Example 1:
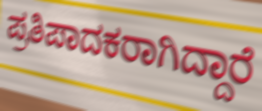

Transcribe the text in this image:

ಪ್ರತಿಪಾದಕರಾಗಿದ್ದಾರೆ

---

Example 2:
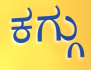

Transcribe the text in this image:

ಕಗ್ಗು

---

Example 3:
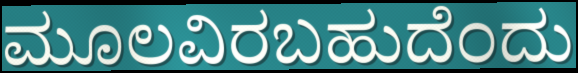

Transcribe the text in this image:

ಮೂಲವಿರಬಹುದೆಂದು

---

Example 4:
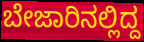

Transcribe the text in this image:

ಬೇಜಾರಿನಲ್ಲಿದ್ದ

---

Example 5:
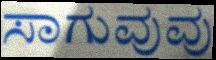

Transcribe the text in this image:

ಸಾಗುವುವು